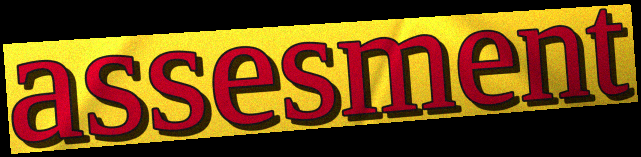
assesment